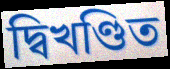
দ্বিখণ্ডিত